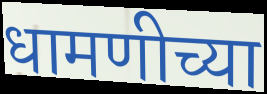
धामणीच्या